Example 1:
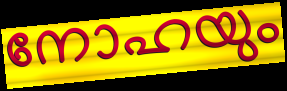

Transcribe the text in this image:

നോഹയും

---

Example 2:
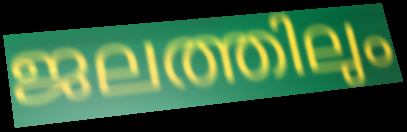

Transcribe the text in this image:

ജലത്തിലും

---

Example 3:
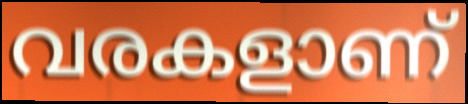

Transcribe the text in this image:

വരകളാണ്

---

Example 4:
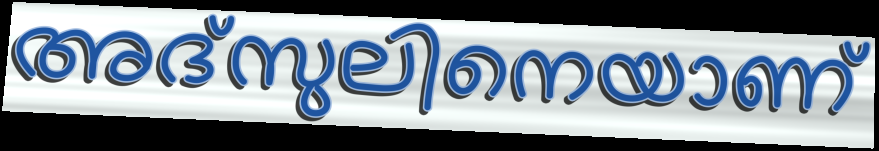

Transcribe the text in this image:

അദ്സുലിനെയാണ്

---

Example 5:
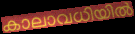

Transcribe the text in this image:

കാലാവധിയിൽ